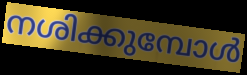
നശിക്കുമ്പോൾ